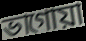
ভাগোয়া